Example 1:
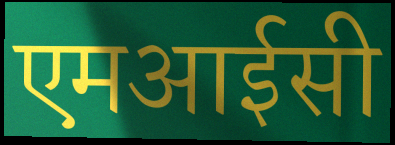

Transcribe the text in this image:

एमआईसी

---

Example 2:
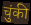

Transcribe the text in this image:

चुंकी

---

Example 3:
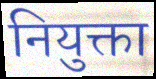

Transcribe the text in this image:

नियुक्ता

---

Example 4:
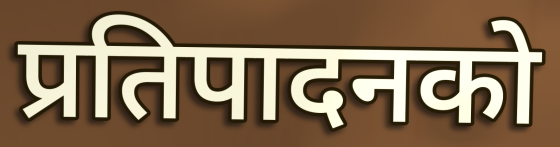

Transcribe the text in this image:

प्रतिपादनको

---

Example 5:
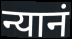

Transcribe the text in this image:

न्यानं